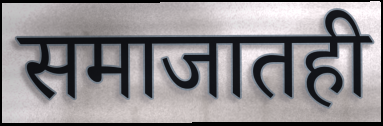
समाजातही